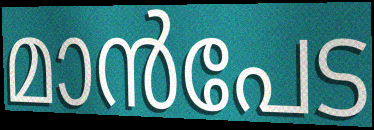
മാൻപേട